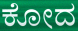
ಕೋದ